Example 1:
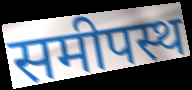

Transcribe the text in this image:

समीपस्थ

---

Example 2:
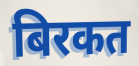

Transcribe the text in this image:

बिरकत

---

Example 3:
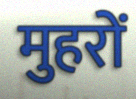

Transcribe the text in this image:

मुहरों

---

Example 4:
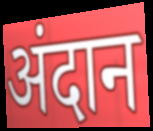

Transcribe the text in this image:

अंदान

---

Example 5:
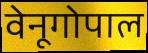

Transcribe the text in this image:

वेनूगोपाल